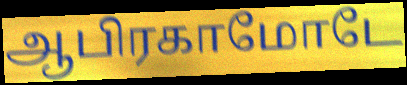
ஆபிரகாமோடே